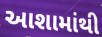
આશામાંથી